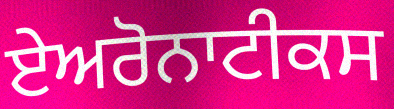
ਏਅਰੋਨਾਟੀਕਸ